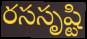
రససృష్టి